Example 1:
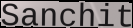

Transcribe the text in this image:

Sanchit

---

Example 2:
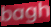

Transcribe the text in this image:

bagh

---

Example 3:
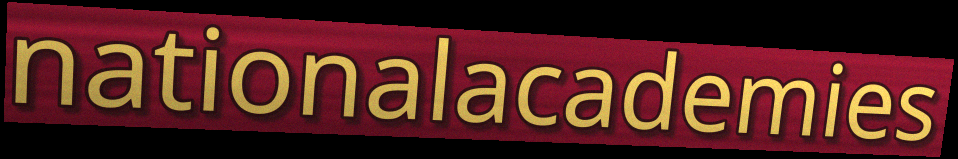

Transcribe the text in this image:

nationalacademies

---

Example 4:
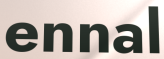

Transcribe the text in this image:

ennal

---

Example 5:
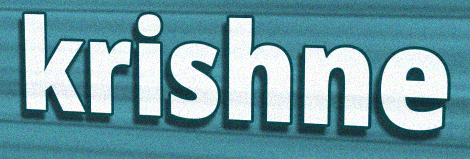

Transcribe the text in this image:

krishne